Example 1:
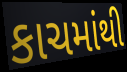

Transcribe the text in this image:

કાચમાંથી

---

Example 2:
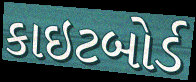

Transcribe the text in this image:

કાઇટબોર્ડ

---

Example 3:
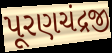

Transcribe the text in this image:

પૂરણચંદ્રજી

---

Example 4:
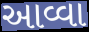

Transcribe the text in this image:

આવ્વા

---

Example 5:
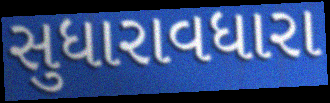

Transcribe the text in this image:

સુધારાવધારા